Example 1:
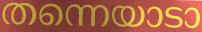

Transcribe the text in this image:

തന്നെയാടാ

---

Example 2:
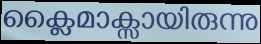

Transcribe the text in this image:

ക്ലൈമാക്സായിരുന്നു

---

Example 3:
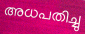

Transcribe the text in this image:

അധപതിച്ചു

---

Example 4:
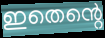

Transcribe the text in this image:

ഇതെന്റെ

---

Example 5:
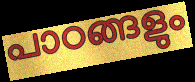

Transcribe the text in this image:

പാഠങ്ങളും